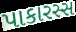
પાકારસ્સ